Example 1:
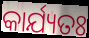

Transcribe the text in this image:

କାର୍ଯ୍ୟତଃ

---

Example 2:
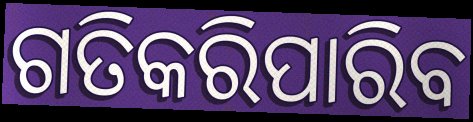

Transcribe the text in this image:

ଗତିକରିପାରିବ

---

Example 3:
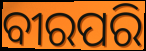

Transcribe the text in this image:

ବୀରପରି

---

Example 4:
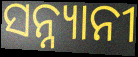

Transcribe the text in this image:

ସନ୍ନ୍ୟାନୀ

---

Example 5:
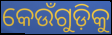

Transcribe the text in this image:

କେଉଁଗୁଡ଼ିକୁ